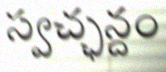
స్వచ్ఛన్దం